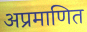
अप्रमाणित